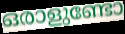
ഒരാളുണ്ടോ